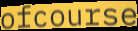
ofcourse